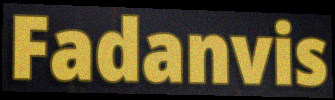
Fadanvis